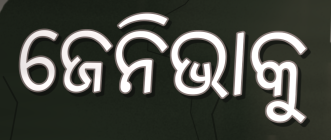
ଜେନିଭାକୁ